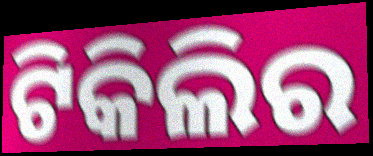
ଟିକିଲିର